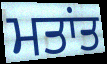
ਮਤਾਂਤ